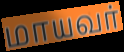
மாயவர்